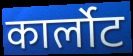
कार्लोट